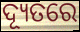
ଦ୍ୟୂତରେ